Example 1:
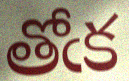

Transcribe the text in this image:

తోఁక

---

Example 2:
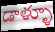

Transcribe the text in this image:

డాళ్ళూ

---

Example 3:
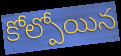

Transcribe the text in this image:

కోల్పోయిన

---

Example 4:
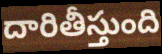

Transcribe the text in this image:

దారితీస్తుంది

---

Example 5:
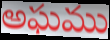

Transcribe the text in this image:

అఘము